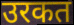
उरकत